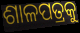
ଶାଳପତ୍ରକୁ